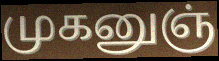
முகனுஞ்